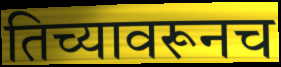
तिच्यावरूनच